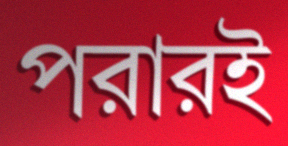
পরারই